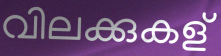
വിലക്കുകള്